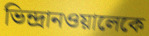
ভিন্দ্রানওয়ালেকে